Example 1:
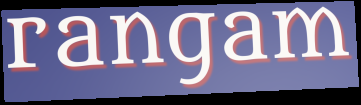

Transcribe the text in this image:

rangam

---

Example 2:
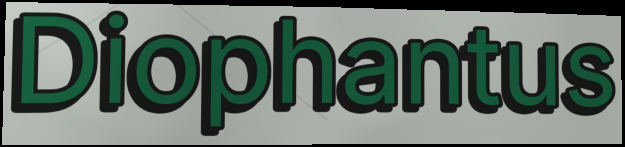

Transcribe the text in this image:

Diophantus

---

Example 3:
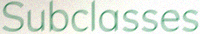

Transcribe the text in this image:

Subclasses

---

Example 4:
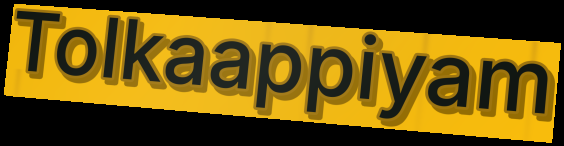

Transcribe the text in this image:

Tolkaappiyam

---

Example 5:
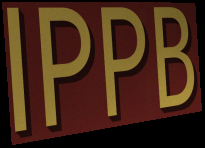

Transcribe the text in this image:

IPPB